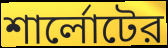
শার্লোটের